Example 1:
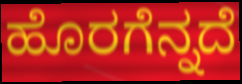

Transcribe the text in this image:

ಹೊರಗೆನ್ನದೆ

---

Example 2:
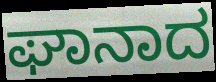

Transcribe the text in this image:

ಘಾನಾದ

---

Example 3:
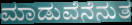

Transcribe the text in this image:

ಮಾಡುವೆನೆನುತ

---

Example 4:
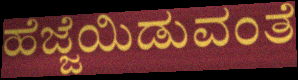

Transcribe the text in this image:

ಹೆಜ್ಜೆಯಿಡುವಂತೆ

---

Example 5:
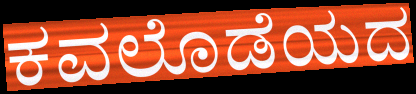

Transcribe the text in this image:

ಕವಲೊಡೆಯದ